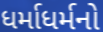
ધર્માધર્મનો